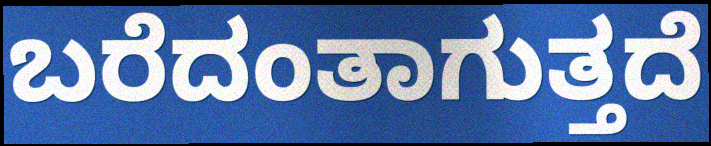
ಬರೆದಂತಾಗುತ್ತದೆ